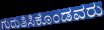
ಗುರುತಿಸಿಕೊಂಡವರು